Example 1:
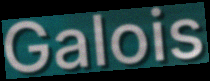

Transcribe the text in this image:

Galois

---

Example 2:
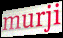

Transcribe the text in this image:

murji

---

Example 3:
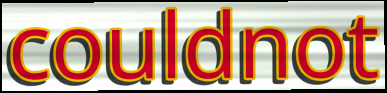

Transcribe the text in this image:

couldnot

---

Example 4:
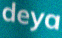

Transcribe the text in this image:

deya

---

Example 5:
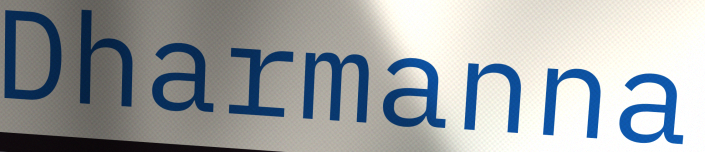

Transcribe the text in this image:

Dharmanna